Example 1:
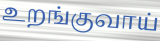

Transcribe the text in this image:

உறங்குவாய்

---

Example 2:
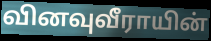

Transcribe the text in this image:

வினவுவீராயின்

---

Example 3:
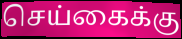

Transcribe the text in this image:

செய்கைக்கு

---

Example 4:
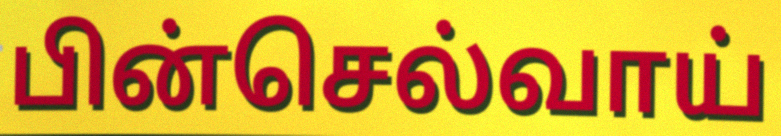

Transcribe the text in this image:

பின்செல்வாய்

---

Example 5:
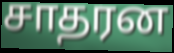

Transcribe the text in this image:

சாதரன